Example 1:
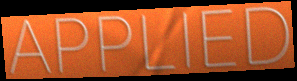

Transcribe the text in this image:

APPLIED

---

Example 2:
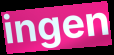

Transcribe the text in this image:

ingen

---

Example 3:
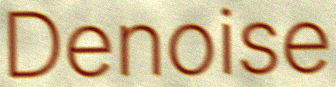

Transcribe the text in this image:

Denoise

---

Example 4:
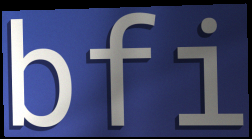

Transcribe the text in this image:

bfi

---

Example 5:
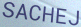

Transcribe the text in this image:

SACHEJ